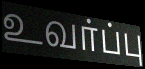
உவர்ப்பு